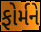
ફોર્મને